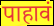
पाहावं